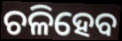
ଚଳିହେବ